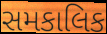
સમકાલિક